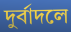
দুর্বাদলে